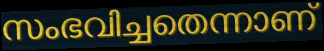
സംഭവിച്ചതെന്നാണ്